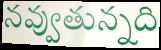
నవ్వుతున్నది